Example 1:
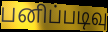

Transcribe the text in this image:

பனிப்படிவு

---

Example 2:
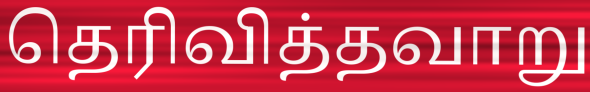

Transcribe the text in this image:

தெரிவித்தவாறு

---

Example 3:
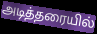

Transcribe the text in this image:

அடித்தரையில்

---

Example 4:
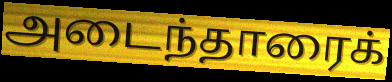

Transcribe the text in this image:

அடைந்தாரைக்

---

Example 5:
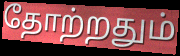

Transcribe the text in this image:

தோற்றதும்